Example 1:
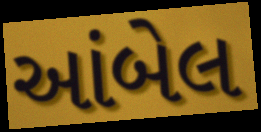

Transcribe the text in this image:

આંબેલ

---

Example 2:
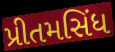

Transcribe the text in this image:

પ્રીતમસિંધ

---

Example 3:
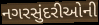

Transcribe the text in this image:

નગરસુંદરીઓની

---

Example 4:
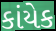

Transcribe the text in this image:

કાંયેક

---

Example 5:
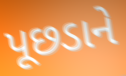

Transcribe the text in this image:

પૂછડાને